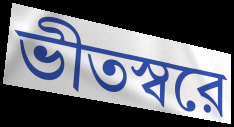
ভীতস্বরে